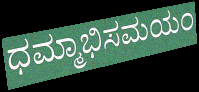
ಧಮ್ಮಾಭಿಸಮಯಂ